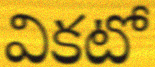
వికటో